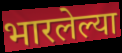
भारलेल्या